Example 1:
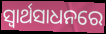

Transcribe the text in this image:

ସ୍ବାର୍ଥସାଧନରେ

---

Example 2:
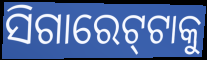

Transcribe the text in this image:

ସିଗାରେଟ୍‍ଟାକୁ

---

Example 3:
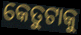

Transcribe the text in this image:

କେତୁଟାକୁ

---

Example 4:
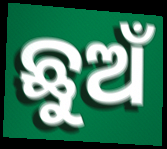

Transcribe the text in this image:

ଛୁଅଁ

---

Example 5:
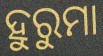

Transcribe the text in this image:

ହୁରୁମା